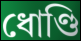
ধোণ্ডি